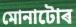
মোনাটোৰ